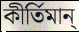
কীর্তিমান্